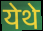
येथे